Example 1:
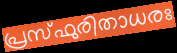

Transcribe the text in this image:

പ്രസ്ഫുരിതാധരഃ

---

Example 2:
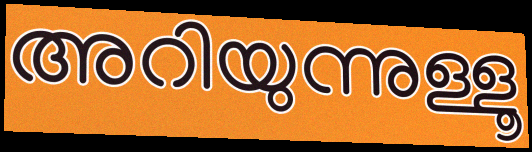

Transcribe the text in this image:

അറിയുന്നുള്ളൂ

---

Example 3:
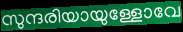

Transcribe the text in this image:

സുന്ദരിയായുള്ളോവേ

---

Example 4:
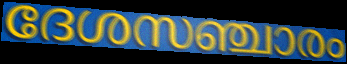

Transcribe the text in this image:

ദേശസഞ്ചാരം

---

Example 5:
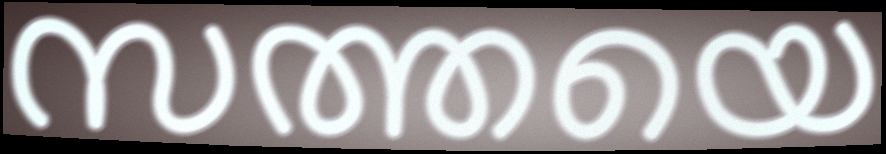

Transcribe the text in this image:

സത്തയെ